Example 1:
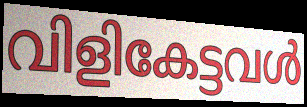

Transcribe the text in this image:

വിളികേട്ടവൾ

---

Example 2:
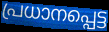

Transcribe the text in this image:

പ്രധാനപ്പെട്ട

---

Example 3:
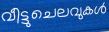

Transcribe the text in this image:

വീട്ടുചെലവുകൾ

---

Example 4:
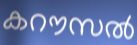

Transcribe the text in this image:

കറൗസൽ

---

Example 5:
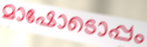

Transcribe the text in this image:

മാഷോടൊപ്പം